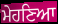
ਮੇਹਣਿਆ